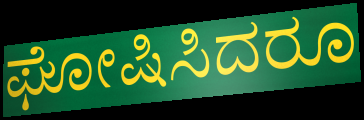
ಘೋಷಿಸಿದರೂ